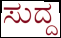
ಸುದ್ದ